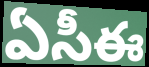
ఏసీఈ